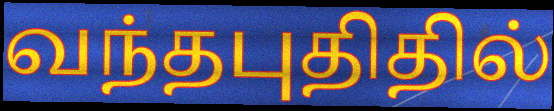
வந்தபுதிதில்